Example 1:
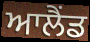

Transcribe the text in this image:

ਆਲੈਂਡ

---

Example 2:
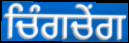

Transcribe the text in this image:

ਚਿੰਗਚੇਂਗ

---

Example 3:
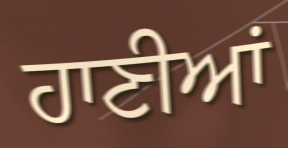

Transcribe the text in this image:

ਹਾਣੀਆਂ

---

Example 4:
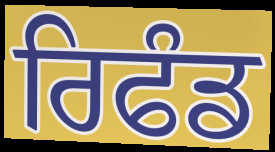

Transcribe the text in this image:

ਰਿਫੰਡ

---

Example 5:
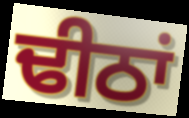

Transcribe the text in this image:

ਢੀਠਾਂ